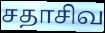
சதாசிவ